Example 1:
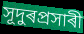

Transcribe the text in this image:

সূদুৰপ্ৰসাৰী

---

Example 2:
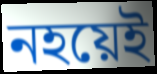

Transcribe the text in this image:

নহয়েই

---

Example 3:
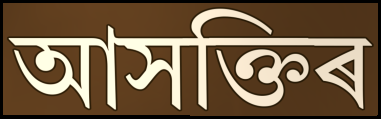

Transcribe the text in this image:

আসক্তিৰ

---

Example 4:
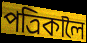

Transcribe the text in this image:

পত্ৰিকালৈ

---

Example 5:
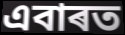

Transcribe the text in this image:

এবাৰত